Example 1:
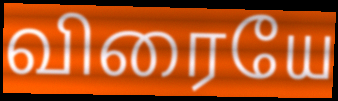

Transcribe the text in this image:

விரையே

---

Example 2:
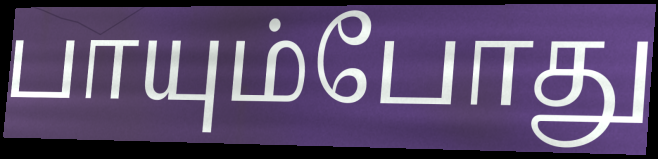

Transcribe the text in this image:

பாயும்போது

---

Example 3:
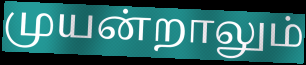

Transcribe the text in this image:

முயன்றாலும்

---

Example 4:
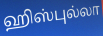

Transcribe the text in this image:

ஹிஸ்புல்லா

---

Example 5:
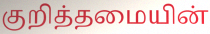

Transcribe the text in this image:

குறித்தமையின்